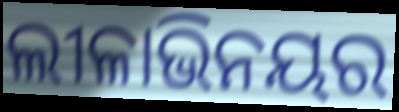
ଲୀଳାଭିନୟର